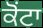
ਕੋਂਟਾ